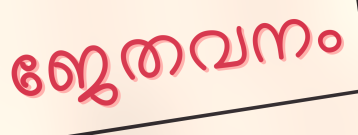
ജേതവനം